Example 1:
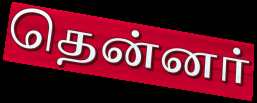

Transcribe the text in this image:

தென்னர்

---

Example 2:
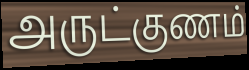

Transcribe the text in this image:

அருட்குணம்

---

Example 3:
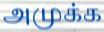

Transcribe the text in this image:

அமுக்க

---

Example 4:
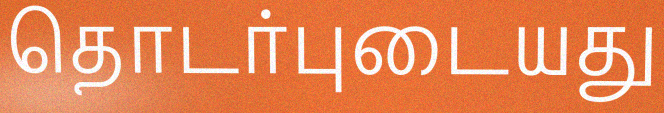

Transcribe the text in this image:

தொடர்புடையது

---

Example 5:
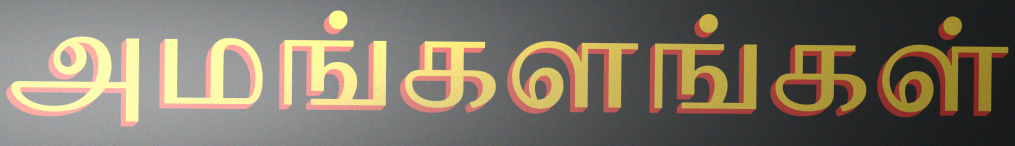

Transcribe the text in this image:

அமங்களங்கள்